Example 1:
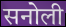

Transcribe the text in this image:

सनोली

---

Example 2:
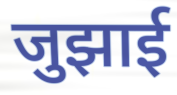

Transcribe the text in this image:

जुझाई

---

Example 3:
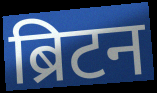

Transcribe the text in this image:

ब्रिटन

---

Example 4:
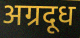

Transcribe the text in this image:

अग्रदूध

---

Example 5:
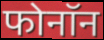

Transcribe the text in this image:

फोनॉन